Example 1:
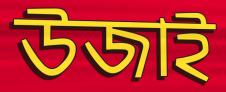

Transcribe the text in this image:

উজাই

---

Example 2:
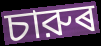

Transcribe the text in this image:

চাৰুৰ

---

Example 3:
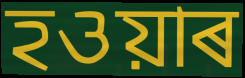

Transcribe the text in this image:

হওয়াৰ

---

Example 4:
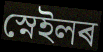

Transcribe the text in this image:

স্নেইলৰ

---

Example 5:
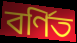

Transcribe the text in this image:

বৰ্ণিত